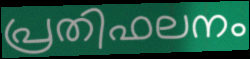
പ്രതിഫലനം